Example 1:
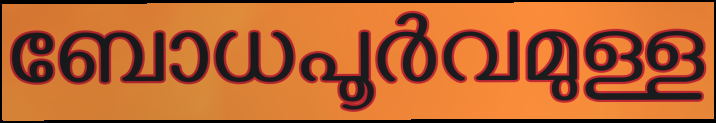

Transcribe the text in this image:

ബോധപൂർവമുള്ള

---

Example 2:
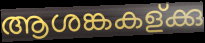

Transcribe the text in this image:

ആശങ്കകള്ക്കു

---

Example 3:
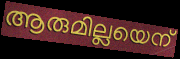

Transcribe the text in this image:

ആരുമില്ലയെന്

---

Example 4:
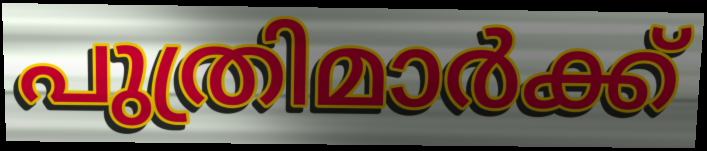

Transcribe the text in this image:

പുത്രിമാർക്ക്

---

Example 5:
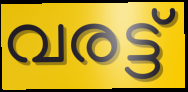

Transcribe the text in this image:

വരട്ട്